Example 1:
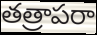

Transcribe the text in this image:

తత్రాపరా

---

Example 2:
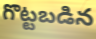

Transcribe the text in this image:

గొట్టబడిన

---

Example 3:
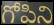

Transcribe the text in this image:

గోపిని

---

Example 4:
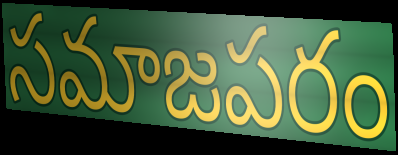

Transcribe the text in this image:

సమాజపరం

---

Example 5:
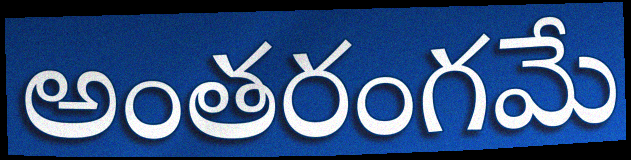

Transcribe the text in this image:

అంతరంగమే